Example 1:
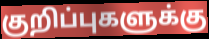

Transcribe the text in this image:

குறிப்புகளுக்கு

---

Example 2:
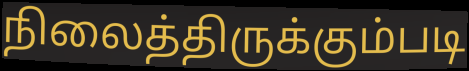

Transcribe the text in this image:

நிலைத்திருக்கும்படி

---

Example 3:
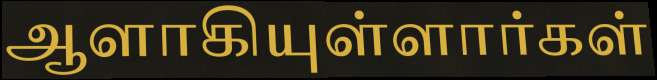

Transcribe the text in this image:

ஆளாகியுள்ளார்கள்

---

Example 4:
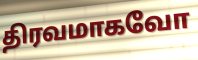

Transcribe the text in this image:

திரவமாகவோ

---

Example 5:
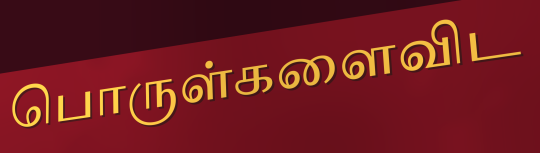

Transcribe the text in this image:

பொருள்களைவிட